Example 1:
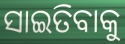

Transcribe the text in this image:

ସାଇତିବାକୁ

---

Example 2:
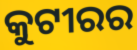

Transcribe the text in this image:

କୁଟୀରର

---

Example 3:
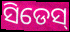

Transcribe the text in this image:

ସିଡେସ୍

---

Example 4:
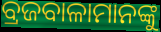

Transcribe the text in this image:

ବ୍ରଜବାଳାମାନଙ୍କୁ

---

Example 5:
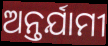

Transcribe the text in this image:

ଅନ୍ତର୍ଯାମୀ